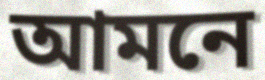
আমনে